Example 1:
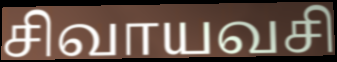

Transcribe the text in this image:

சிவாயவசி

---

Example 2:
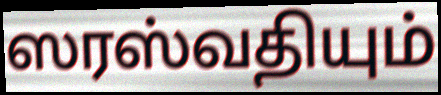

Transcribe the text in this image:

ஸரஸ்வதியும்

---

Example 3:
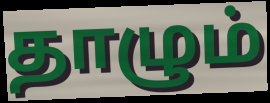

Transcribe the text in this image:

தாழும்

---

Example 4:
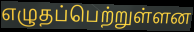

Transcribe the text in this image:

எழுதப்பெற்றுள்ளன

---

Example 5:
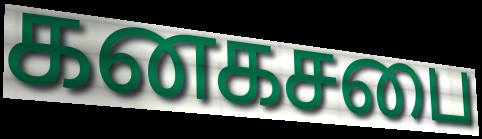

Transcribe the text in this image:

கனகசபை